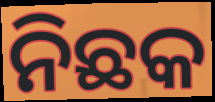
ନିଛକ